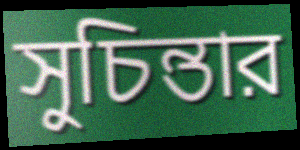
সুচিন্তার